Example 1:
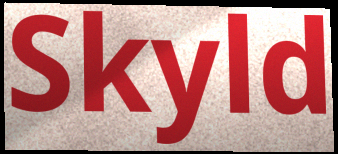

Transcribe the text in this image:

Skyld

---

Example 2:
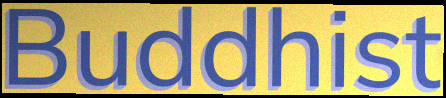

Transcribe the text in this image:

Buddhist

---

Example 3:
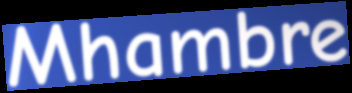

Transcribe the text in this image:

Mhambre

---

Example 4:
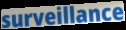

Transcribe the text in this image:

surveillance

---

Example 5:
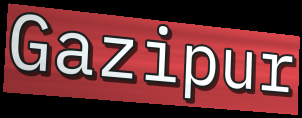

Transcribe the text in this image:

Gazipur